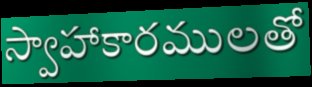
స్వాహాకారములతో